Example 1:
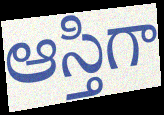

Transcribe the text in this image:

ఆస్తిగా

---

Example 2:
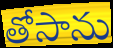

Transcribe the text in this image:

తోసాను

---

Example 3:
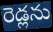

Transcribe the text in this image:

రెడ్లను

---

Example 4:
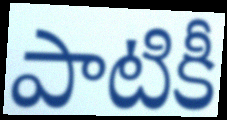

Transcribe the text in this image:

పాటికీ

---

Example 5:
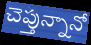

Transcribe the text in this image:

చెప్తున్నానో